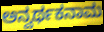
ಅನ್ವರ್ಥಕನಾಮ